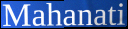
Mahanati